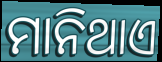
ମାନିଥାଏ